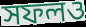
সফলও